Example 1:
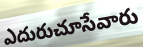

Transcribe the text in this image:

ఎదురుచూసేవారు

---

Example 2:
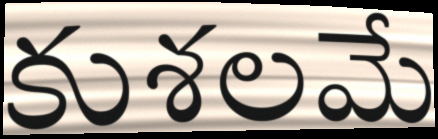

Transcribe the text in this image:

కుశలమే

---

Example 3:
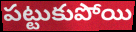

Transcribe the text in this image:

పట్టుకుపోయి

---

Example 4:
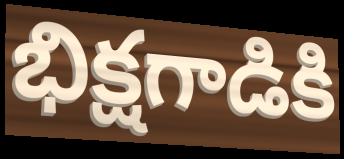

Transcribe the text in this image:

భిక్షగాడికి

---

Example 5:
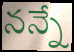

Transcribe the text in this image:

నన్నే